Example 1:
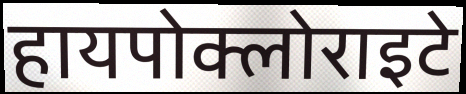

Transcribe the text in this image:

हायपोक्लोराइटे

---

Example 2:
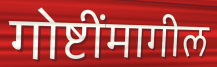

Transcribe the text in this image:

गोष्टींमागील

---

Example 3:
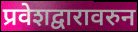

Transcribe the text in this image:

प्रवेशद्वारावरुन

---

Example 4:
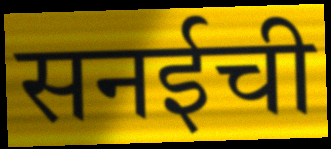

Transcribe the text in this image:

सनईची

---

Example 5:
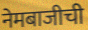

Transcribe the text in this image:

नेमबाजीची